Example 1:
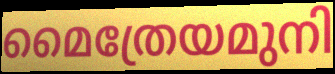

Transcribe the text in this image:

മൈത്രേയമുനി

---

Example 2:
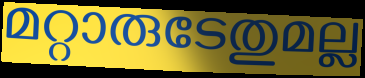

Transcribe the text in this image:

മറ്റാരുടേതുമല്ല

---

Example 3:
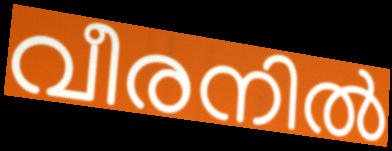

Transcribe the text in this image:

വീരനിൽ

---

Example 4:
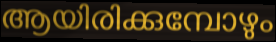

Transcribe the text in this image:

ആയിരിക്കുമ്പോഴും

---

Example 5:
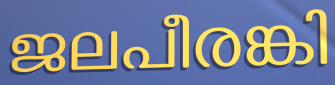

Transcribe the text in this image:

ജലപീരങ്കി